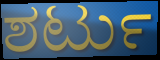
ಶರ್ಟು